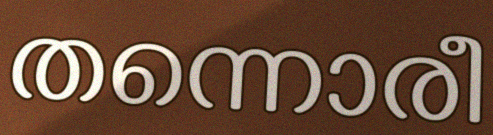
തന്നൊരീ